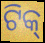
ଟିକ୍